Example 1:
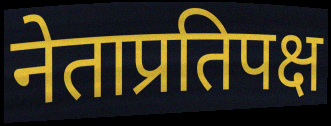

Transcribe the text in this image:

नेताप्रतिपक्ष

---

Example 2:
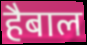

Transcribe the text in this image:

हैबाल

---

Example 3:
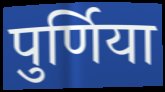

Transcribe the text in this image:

पुर्णिया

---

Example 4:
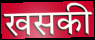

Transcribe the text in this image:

खसकी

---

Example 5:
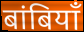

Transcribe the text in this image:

बांबियाँ